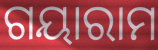
ଗୟାରାମ